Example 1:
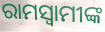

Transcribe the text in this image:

ରାମସ୍ୱାମୀଙ୍କ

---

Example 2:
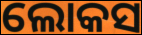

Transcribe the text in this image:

ଲୋକସ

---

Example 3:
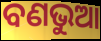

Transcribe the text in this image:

ବଣଭୁଆ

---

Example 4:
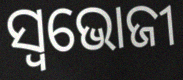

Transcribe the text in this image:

ସ୍ଵଭୋଜୀ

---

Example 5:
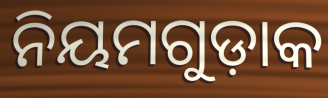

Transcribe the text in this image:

ନିୟମଗୁଡ଼ାକ